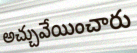
అచ్చువేయించారు